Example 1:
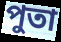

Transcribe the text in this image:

পুতা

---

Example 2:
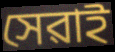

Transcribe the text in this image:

সেৱাই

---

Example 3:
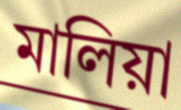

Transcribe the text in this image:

মালিয়া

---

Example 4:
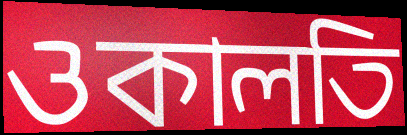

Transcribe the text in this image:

ওকালতি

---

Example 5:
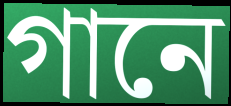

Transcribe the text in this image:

গানে